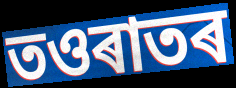
তওৰাতৰ